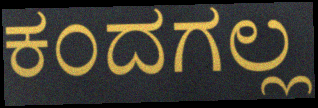
ಕಂದಗಲ್ಲ